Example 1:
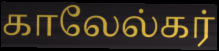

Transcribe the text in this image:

காலேல்கர்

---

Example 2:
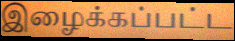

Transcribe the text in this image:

இழைக்கப்பட்ட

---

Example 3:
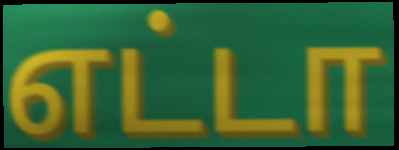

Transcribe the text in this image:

எட்டா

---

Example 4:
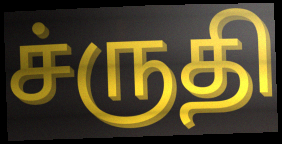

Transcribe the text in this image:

ச்ருதி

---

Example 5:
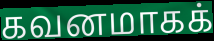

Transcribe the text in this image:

கவனமாகக்